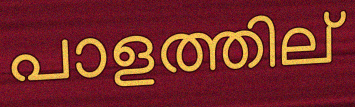
പാളത്തില്